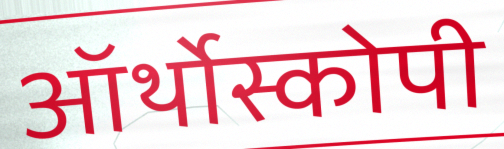
ऑर्थोस्कोपी